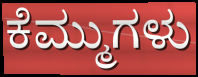
ಕೆಮ್ಮುಗಳು